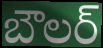
బౌలర్